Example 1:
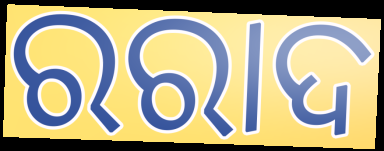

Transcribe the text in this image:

ରରାଦ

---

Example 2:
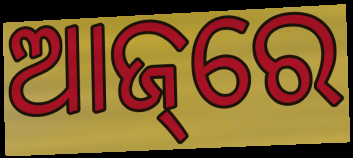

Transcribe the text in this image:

ଆଜ୍‌ରେ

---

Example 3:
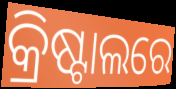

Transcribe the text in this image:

କ୍ରିଷ୍ଟାଲରେ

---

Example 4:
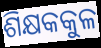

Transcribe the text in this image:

ଶିକ୍ଷକକୁଳ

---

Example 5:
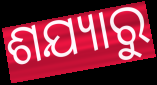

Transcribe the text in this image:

ଶଯ୍ୟାରୁ